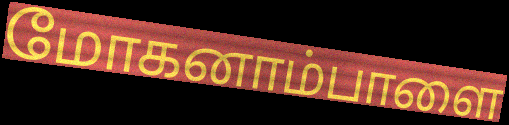
மோகனாம்பாளை